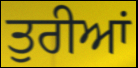
ਤੁਰੀਆਂ